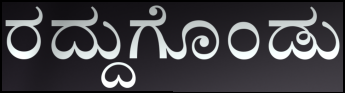
ರದ್ದುಗೊಂಡು